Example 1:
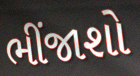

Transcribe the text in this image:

ભીંજાશો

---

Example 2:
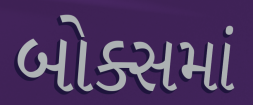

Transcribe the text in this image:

બોક્સમાં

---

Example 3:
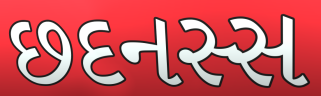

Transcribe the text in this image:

છદનસ્સ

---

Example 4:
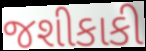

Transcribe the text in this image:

જશીકાકી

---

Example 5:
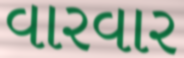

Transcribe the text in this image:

વારવાર